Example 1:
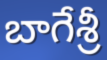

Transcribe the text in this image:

బాగేశ్రీ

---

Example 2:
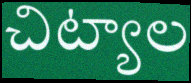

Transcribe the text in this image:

చిట్యాల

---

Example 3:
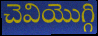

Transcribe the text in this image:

చెవియొగ్గి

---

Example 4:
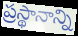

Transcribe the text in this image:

ప్రస్థానాన్ని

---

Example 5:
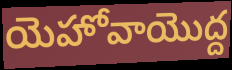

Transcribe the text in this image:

యెహోవాయొద్ద